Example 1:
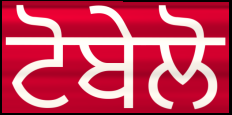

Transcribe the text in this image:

ਟੋਬੇਲੋ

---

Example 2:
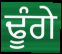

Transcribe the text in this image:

ਢੂੰਗੇ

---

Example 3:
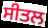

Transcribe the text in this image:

ਸੀਤਲ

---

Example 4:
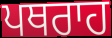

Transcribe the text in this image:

ਪਥਰਾਹ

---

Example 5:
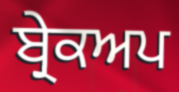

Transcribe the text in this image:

ਬ੍ਰੇਕਅਪ